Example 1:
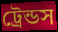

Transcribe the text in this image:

ট্রেন্ডস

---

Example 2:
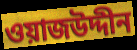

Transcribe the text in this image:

ওয়াজউদ্দীন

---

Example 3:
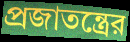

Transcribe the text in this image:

প্রজাতন্ত্রের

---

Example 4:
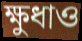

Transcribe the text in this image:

ক্ষুধাও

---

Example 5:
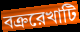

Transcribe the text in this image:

বক্ররেখাটি